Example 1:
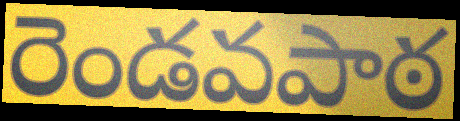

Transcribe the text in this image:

రెండవపాఠ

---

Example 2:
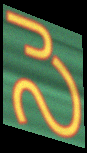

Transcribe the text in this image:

సె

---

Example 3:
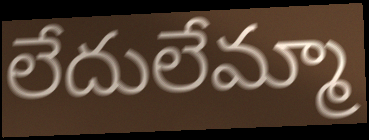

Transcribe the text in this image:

లేదులేమ్మా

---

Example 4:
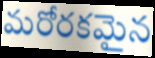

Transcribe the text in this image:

మరోరకమైన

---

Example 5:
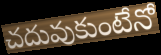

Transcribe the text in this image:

చదువుకుంటేనో